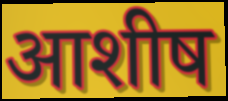
आशीष